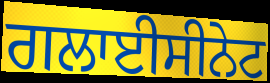
ਗਲਾਈਸੀਨੇਟ